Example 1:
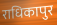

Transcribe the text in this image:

राधिकापुर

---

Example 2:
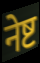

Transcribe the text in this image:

नेष्ट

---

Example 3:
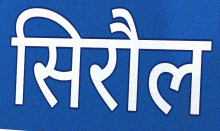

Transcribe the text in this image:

सिरौल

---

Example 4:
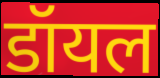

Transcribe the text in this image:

डॉयल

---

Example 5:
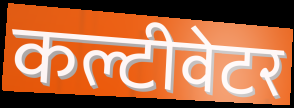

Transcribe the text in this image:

कल्टीवेटर